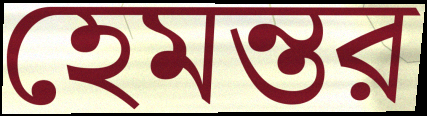
হেমন্তর